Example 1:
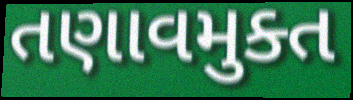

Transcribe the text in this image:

તણાવમુક્ત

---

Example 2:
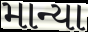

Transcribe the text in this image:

માન્યા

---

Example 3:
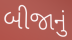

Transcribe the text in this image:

બીજાનું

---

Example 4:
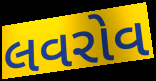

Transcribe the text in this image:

લવરોવ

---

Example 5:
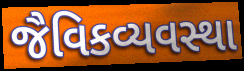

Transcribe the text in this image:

જૈવિકવ્યવસ્થા